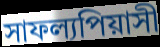
সাফল্যপিয়াসী